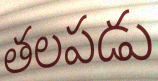
తలపడు